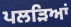
ਪਲੜਿਆਂ